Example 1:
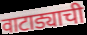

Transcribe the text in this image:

वाटाड्याची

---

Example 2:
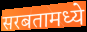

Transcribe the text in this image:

सरबतामध्ये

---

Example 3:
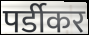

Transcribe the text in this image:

पर्डीकर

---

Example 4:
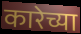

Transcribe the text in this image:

कारेच्या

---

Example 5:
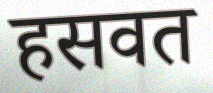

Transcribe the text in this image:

हसवत